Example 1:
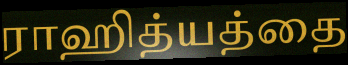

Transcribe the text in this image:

ராஹித்யத்தை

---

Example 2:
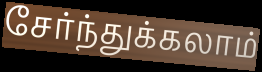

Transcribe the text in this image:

சேர்ந்துக்கலாம்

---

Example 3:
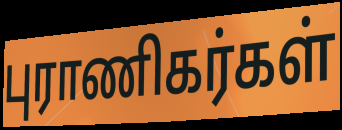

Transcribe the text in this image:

புராணிகர்கள்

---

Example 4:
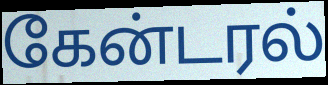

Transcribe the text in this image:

கேன்டரல்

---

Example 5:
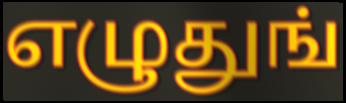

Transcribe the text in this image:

எழுதுங்